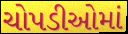
ચોપડીઓમાં